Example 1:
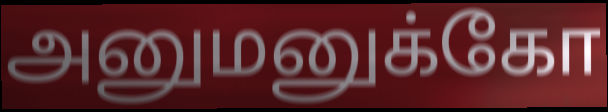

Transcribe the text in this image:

அனுமனுக்கோ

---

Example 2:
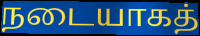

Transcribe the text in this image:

நடையாகத்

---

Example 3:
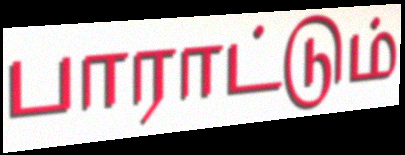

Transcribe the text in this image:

பாராட்டும்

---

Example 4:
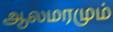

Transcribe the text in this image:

ஆலமரமும்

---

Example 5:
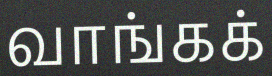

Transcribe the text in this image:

வாங்கக்